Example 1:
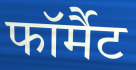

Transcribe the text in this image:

फॉर्मैट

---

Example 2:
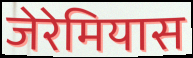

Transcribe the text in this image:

जेरेमियास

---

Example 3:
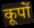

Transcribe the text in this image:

कूपों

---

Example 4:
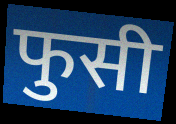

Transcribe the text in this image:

फुसी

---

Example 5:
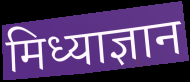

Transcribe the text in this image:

मिध्याज्ञान